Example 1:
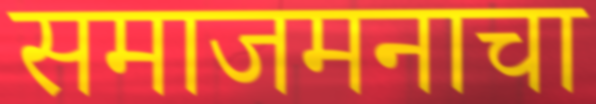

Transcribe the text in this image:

समाजमनाचा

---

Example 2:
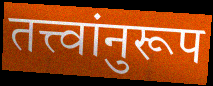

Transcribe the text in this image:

तत्त्वांनुरूप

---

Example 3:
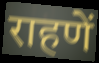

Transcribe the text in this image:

राहणें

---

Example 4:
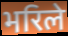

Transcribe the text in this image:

भरिले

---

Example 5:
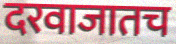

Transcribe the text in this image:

दरवाजातच